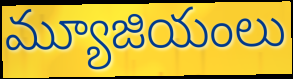
మ్యూజియంలు